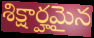
శిక్షార్హమైన